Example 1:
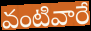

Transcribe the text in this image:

వంటివారే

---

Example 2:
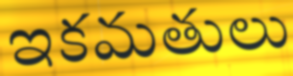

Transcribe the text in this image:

ఇకమతులు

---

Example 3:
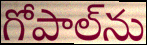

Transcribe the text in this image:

గోపాల్‌ను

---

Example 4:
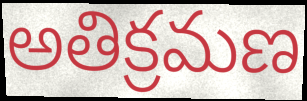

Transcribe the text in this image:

అతిక్రమణ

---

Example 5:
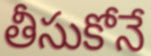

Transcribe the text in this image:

తీసుకోనే